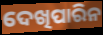
ଦେଖିପାରିନ